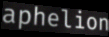
aphelion